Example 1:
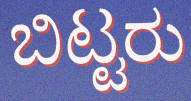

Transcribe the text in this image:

ಬಿಟ್ಟರು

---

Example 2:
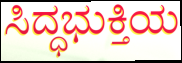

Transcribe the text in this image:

ಸಿದ್ಧಭುಕ್ತಿಯ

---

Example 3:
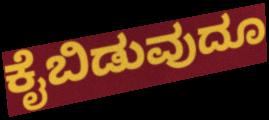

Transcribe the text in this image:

ಕೈಬಿಡುವುದೂ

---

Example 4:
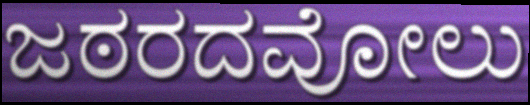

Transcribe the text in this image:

ಜಠರದವೋಲು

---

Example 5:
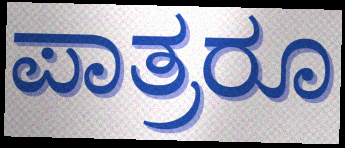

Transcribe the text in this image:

ಪಾತ್ರರೂ